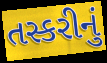
તસ્કરીનું